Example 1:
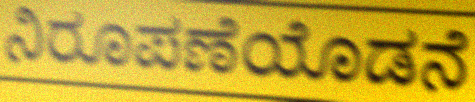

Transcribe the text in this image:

ನಿರೂಪಣೆಯೊಡನೆ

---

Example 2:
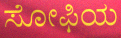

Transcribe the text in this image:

ಸೋಫಿಯ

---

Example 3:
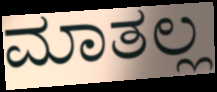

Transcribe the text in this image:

ಮಾತಲ್ಲ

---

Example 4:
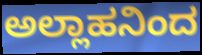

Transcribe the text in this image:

ಅಲ್ಲಾಹನಿಂದ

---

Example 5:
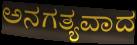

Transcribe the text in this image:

ಅನಗತ್ಯವಾದ